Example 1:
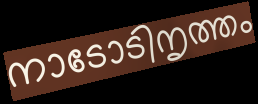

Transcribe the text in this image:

നാടോടിനൃത്തം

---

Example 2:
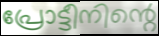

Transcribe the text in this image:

പ്രോട്ടീനിന്റെ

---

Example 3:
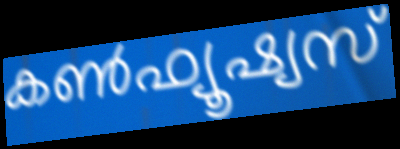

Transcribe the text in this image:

കൺഫ്യൂഷ്യസ്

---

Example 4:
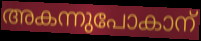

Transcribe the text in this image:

അകന്നുപോകാന്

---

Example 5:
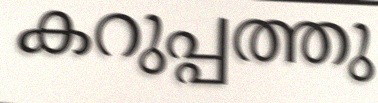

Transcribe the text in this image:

കറുപ്പത്തു